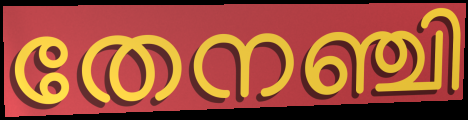
തേനഞ്ചി